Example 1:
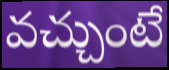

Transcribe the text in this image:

వచ్చుంటే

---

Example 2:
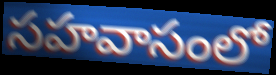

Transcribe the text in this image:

సహవాసంలో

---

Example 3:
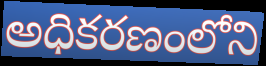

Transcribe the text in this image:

అధికరణంలోని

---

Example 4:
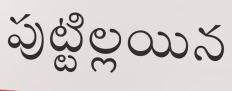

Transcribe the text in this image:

పుట్టిల్లయిన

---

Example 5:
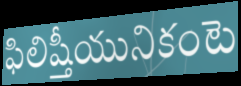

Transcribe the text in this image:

ఫిలిష్తీయునికంటె